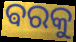
ଵରକୁ